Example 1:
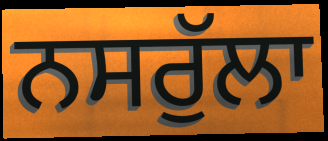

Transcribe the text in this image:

ਨਸਰੁੱਲਾ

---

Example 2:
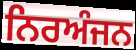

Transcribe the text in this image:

ਨਿਰਅੰਜਨ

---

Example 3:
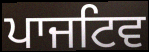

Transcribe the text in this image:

ਪਾਜਟਿਵ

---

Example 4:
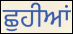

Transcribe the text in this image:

ਛੁਹੀਆਂ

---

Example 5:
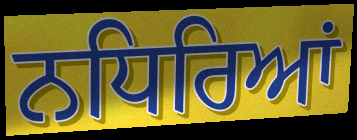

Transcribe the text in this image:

ਨਧਿਰਿਆਂ